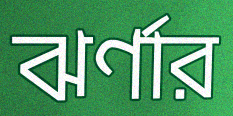
ঝর্ণার